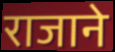
राजाने